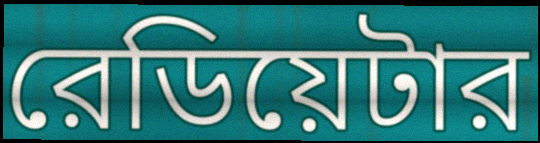
রেডিয়েটার